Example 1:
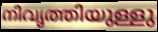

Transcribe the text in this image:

നിവൃത്തിയുള്ളു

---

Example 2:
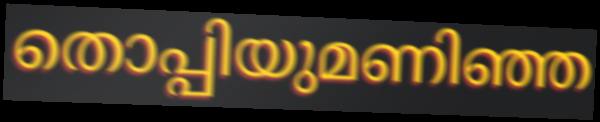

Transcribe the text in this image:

തൊപ്പിയുമണിഞ്ഞ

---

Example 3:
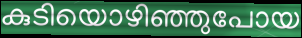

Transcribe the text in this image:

കുടിയൊഴിഞ്ഞുപോയ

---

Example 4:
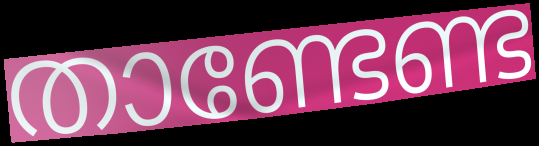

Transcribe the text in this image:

താണ്ടേണ്ട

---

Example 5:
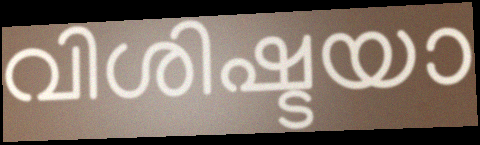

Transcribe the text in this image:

വിശിഷ്ടയാ